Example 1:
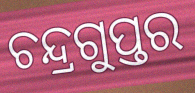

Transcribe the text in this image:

ଚନ୍ଦ୍ରଗୁପ୍ତର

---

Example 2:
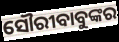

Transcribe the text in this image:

ସୌରୀବାବୁଙ୍କର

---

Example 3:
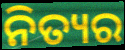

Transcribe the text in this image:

ନିତ୍ୟର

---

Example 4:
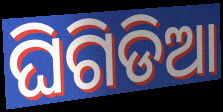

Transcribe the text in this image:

ଘିଗିଡିଆ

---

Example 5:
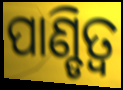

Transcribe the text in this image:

ପାଣ୍ଡିତ୍ୱ